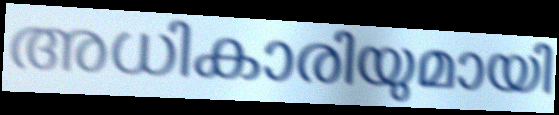
അധികാരിയുമായി